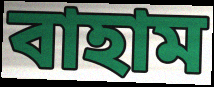
বাহাম